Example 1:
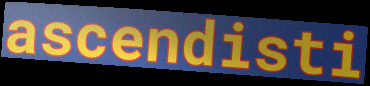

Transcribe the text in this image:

ascendisti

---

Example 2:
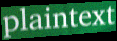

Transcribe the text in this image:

plaintext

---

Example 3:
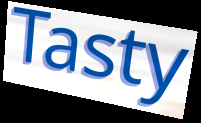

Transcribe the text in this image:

Tasty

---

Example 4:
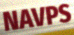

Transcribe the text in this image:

NAVPS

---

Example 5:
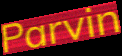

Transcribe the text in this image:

Parvin